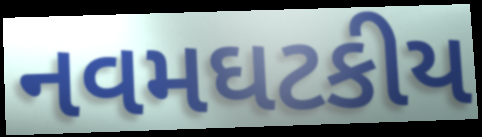
નવમઘટકીય